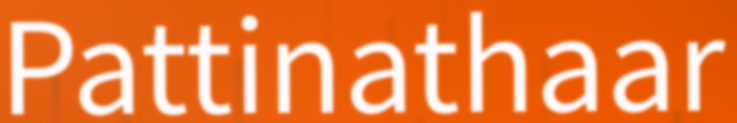
Pattinathaar